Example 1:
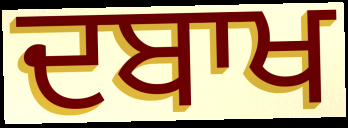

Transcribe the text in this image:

ਦਬਾਖ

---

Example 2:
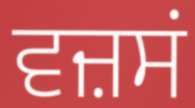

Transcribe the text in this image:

ਵਜ਼ਸਂ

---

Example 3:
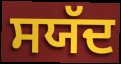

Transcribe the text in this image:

ਸਯੱਦ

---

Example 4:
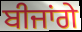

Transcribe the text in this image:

ਬੀਜਾਂਗੇ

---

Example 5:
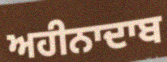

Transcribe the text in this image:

ਅਹੀਨਾਦਾਬ